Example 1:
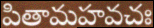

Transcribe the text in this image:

పితామహవచః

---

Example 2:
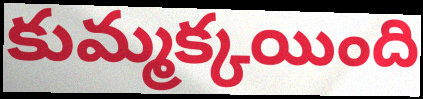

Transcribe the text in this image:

కుమ్మక్కయింది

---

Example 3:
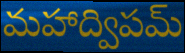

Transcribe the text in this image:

మహాద్విపమ్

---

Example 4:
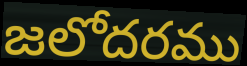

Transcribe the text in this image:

జలోదరము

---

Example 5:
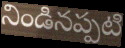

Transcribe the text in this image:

నిండినప్పటి